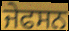
ਜੇਫਸਨ